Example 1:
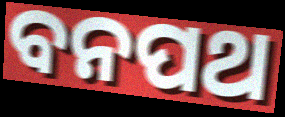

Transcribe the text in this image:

ବନପଥ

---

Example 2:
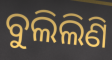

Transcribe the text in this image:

ବୁଲିଲିଣି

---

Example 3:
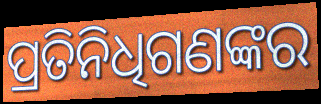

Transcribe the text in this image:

ପ୍ରତିନିଧିଗଣଙ୍କର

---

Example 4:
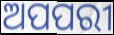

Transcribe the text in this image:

ଅପପରୀ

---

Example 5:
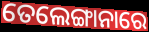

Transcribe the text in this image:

ତେଲେଙ୍ଗାନାରେ